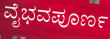
ವೈಭವಪೂರ್ಣ